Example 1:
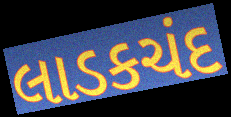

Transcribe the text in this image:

લાડકચંદ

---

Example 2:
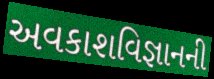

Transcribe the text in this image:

અવકાશવિજ્ઞાનની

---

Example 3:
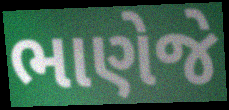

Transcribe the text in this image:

ભાણેજે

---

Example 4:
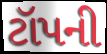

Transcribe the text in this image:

ટૉપની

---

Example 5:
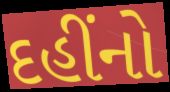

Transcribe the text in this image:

દહીંનો